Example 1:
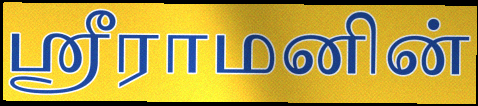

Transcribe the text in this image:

ஸ்ரீராமனின்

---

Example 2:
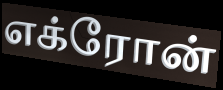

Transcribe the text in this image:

எக்ரோன்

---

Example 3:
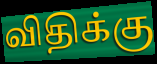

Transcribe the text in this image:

விதிக்கு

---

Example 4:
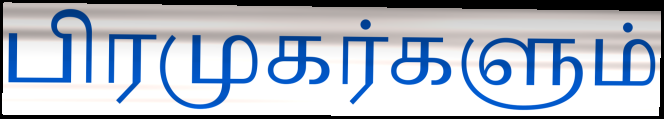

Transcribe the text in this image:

பிரமுகர்களும்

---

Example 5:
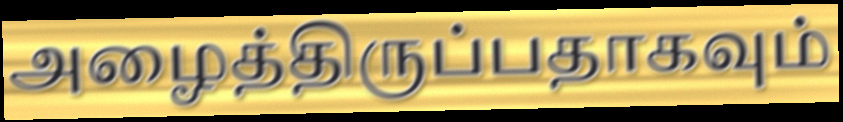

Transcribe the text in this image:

அழைத்திருப்பதாகவும்